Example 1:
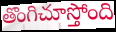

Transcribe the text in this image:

తొంగిచూస్తోంది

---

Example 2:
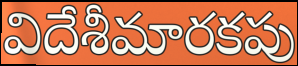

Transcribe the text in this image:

విదేశీమారకపు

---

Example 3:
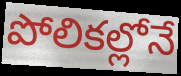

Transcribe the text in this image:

పోలికల్లోనే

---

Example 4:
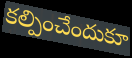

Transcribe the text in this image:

కల్పించేందుకూ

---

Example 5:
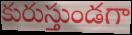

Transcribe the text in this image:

కురుస్తుండగా